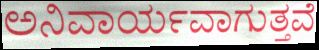
ಅನಿವಾರ್ಯವಾಗುತ್ತವೆ